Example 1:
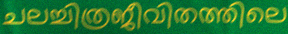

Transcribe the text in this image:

ചലച്ചിത്രജീവിതത്തിലെ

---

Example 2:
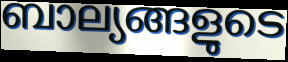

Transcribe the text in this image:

ബാല്യങ്ങളുടെ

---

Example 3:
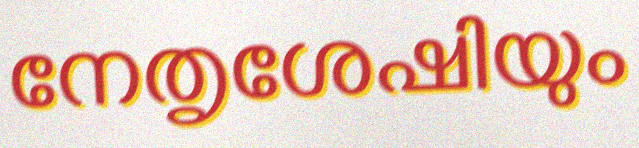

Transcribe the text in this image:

നേതൃശേഷിയും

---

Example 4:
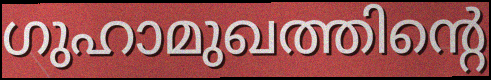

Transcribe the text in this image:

ഗുഹാമുഖത്തിന്റെ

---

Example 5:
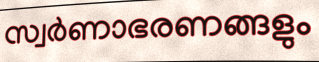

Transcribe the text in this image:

സ്വർണാഭരണങ്ങളും